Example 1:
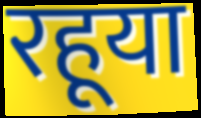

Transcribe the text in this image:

रहूया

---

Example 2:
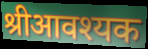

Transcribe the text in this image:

श्रीआवश्यक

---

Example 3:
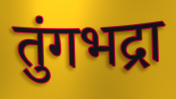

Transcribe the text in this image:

तुंगभद्रा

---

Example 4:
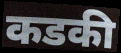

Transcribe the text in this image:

कडकी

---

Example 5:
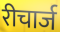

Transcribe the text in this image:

रीचार्ज